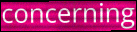
concerning